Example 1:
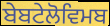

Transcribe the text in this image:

ਬੇਬਟੇਲੋਵਿਮਬ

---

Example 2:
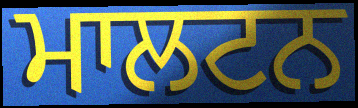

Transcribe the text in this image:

ਮਾਲਟਨ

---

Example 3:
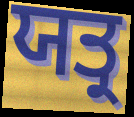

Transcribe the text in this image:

ਯਤ੍ਰ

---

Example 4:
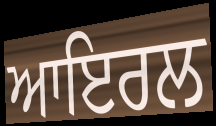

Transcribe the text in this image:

ਆਇਰਲ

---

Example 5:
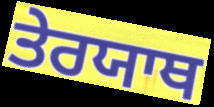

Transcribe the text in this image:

ਤੇਰਯਾਥ